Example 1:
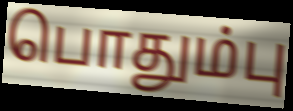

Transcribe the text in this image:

பொதும்பு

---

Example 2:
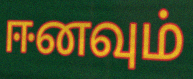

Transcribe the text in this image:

ஈனவும்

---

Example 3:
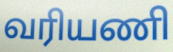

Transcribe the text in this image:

வரியணி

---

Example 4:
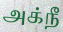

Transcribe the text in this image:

அக்நீ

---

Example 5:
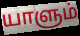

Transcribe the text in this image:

யாளும்